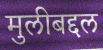
मुलीबद्दल